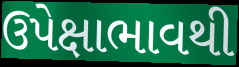
ઉપેક્ષાભાવથી